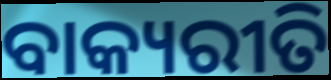
ବାକ୍ୟରୀତି